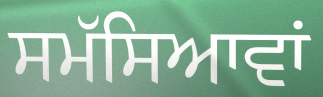
ਸਮੱਸਿਆਵਾਂ